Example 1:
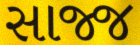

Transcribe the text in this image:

સાજ્જ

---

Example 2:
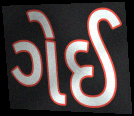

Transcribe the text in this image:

ગેઈ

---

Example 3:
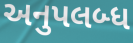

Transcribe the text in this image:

અનુપલબ્ધ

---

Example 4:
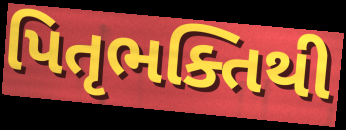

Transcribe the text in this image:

પિતૃભક્તિથી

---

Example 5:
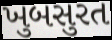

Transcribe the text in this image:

ખુબસુરત